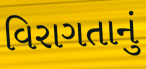
વિરાગતાનું